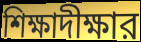
শিক্ষাদীক্ষার